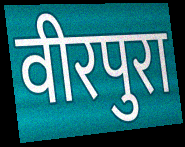
वीरपुरा